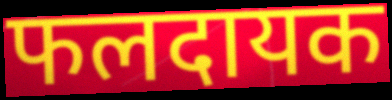
फलदायक